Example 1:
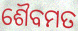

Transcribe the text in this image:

ଶୈବମତ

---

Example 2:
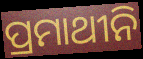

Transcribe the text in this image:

ପ୍ରମାଥୀନି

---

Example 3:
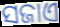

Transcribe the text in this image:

ସଜାଏ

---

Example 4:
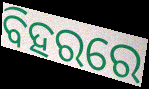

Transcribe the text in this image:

ବିହରରେ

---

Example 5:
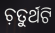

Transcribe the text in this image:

ଚ଼ତୁର୍ଥଟି